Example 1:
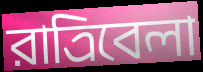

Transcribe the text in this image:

রাত্রিবেলা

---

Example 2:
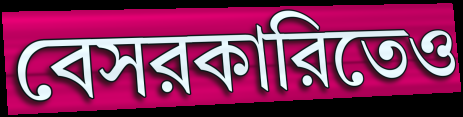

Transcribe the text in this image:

বেসরকারিতেও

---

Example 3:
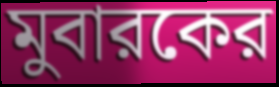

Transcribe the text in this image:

মুবারকের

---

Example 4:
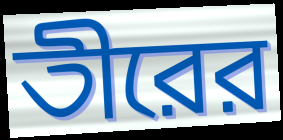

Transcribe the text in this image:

তীরের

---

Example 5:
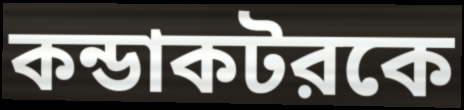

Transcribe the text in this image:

কন্ডাকটরকে